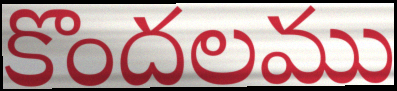
కొందలము